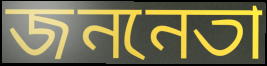
জননেতা